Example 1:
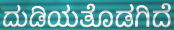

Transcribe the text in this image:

ದುಡಿಯತೊಡಗಿದೆ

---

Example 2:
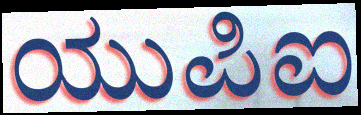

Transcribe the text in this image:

ಯುಪಿಐ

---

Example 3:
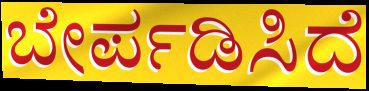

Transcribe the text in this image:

ಬೇರ್ಪಡಿಸಿದೆ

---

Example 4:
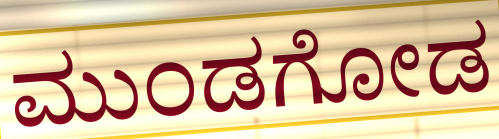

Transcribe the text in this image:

ಮುಂಡಗೋಡ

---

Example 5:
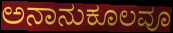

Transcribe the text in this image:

ಅನಾನುಕೂಲವೂ